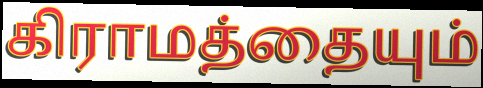
கிராமத்தையும்